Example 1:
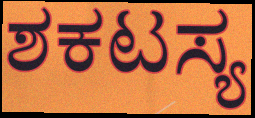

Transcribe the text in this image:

ಶಕಟಸ್ಯ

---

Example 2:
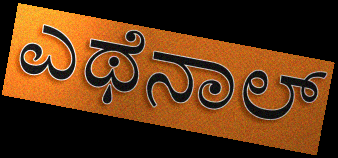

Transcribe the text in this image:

ಎಥೆನಾಲ್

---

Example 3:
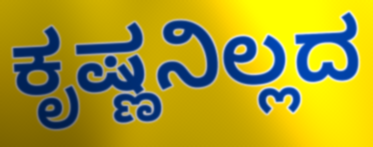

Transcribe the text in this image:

ಕೃಷ್ಣನಿಲ್ಲದ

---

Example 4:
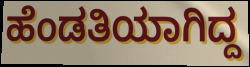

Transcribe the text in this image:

ಹೆಂಡತಿಯಾಗಿದ್ದ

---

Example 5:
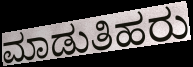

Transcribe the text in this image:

ಮಾಡುತಿಹರು